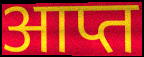
आप्त